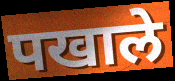
पखाले